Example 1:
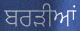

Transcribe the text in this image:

ਬਰੜੀਆਂ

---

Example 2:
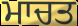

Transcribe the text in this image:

ਮਾਚਤ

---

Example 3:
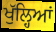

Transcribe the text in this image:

ਖੁੱਲ੍ਹਿਆਂ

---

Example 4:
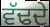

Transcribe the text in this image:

ਵੱਢਦੇ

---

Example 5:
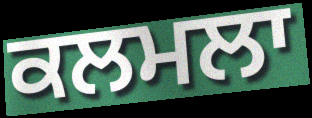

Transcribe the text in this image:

ਕਲਮਲਾ